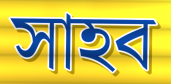
সাহব